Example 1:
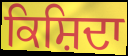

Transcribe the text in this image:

ਕਿਸ਼ਿਦਾ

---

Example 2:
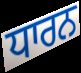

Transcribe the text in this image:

ਧਾਰਨ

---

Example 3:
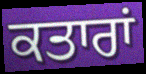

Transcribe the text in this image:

ਕਤਾਰਾਂ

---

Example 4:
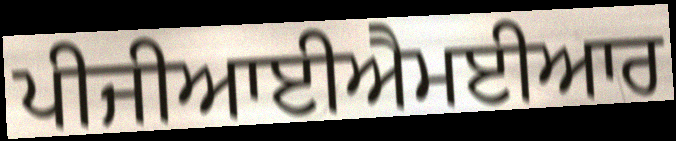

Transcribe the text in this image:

ਪੀਜੀਆਈਐਮਈਆਰ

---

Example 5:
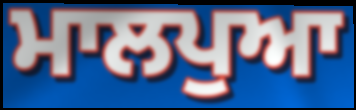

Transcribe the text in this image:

ਮਾਲਪੁਆ